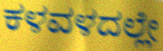
ಕಳವಳದಲ್ಲೇ